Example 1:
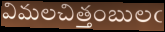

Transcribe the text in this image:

విమలచిత్తంబులఁ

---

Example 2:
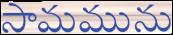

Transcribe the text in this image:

సామమును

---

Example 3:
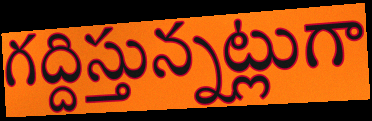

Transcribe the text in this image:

గద్దిస్తున్నట్లుగా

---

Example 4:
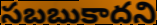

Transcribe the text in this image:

సబబుకాదని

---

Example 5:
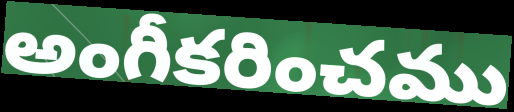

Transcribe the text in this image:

అంగీకరించము